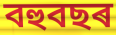
বহুবছৰ